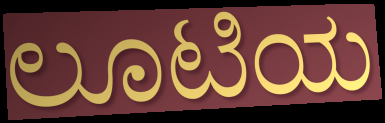
ಲೂಟಿಯ